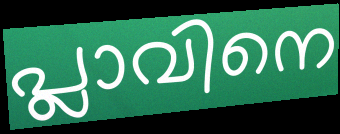
പ്ലാവിനെ